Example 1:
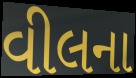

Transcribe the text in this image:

વીલના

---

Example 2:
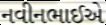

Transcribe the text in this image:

નવીનભાઈએ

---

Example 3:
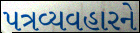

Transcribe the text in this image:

પત્રવ્યવહારને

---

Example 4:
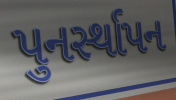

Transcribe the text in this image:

પુનર્સ્થાપન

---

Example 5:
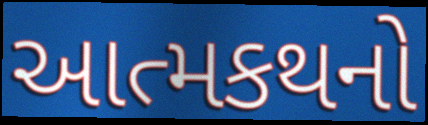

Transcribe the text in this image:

આત્મકથનો